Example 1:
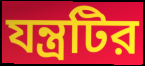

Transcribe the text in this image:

যন্ত্রটির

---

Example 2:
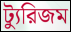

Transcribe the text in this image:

ট্যুরিজম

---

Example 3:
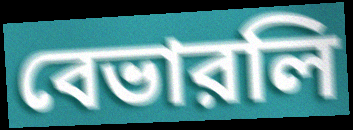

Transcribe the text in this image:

বেভারলি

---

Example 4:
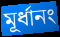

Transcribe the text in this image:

মূর্ধানং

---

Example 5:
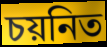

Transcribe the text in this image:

চয়নিত